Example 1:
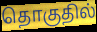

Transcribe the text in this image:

தொகுதில்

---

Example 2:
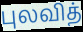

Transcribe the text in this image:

புலவித்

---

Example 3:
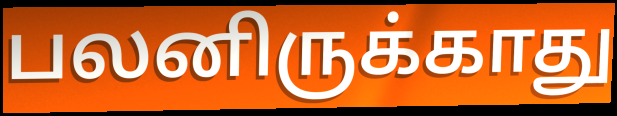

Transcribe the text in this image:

பலனிருக்காது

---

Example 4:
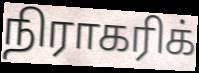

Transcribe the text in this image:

நிராகரிக்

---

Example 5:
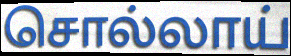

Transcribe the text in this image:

சொல்லாய்